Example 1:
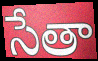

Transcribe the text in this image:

సేతా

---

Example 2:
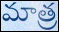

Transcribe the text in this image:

మాత్ర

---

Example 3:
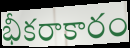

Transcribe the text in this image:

భీకరాకారం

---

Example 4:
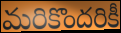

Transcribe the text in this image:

మరికొందరికీ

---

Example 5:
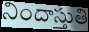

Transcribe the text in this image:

నిందాస్తుతి